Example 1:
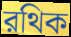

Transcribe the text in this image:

রথিক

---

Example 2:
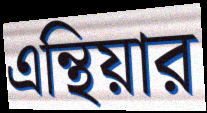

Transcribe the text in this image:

এন্থিয়ার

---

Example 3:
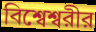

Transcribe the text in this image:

বিশ্বেশ্বরীর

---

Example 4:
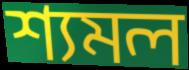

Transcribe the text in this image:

শ্যমল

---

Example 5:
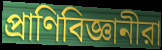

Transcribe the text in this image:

প্রাণিবিজ্ঞানীরা